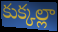
కుక్కల్లా